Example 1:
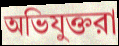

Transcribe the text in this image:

অভিযুক্তরা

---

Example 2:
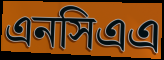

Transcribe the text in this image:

এনসিএএ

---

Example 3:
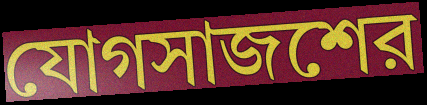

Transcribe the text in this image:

যোগসাজশের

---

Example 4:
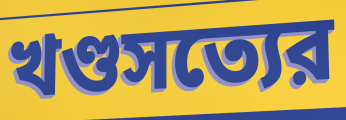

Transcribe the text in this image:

খণ্ডসত্যের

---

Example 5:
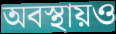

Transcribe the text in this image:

অবস্থায়ও